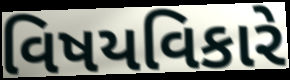
વિષયવિકારે